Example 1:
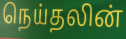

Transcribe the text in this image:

நெய்தலின்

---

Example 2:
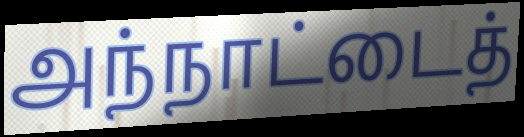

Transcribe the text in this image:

அந்நாட்டைத்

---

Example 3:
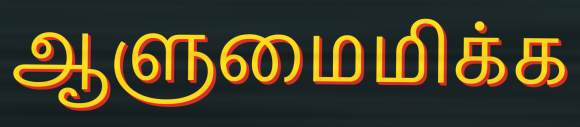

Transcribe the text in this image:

ஆளுமைமிக்க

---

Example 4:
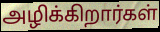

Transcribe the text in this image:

அழிக்கிறார்கள்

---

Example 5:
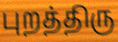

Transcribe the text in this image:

புறத்திரு